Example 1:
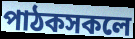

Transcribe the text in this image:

পাঠকসকলে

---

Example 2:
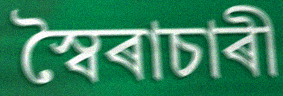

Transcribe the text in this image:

স্বৈৰাচাৰী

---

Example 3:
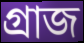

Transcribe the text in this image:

গ্ৰাজ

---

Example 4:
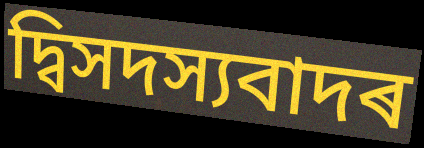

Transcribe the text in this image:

দ্বিসদস্যবাদৰ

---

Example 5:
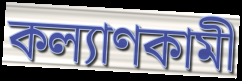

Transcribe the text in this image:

কল্যাণকামী